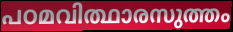
പഠമവിത്ഥാരസുത്തം